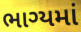
ભાગ્યમાં